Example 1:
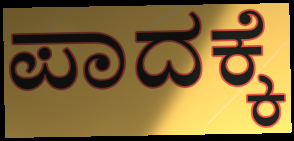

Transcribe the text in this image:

ಪಾದಕ್ಕೆ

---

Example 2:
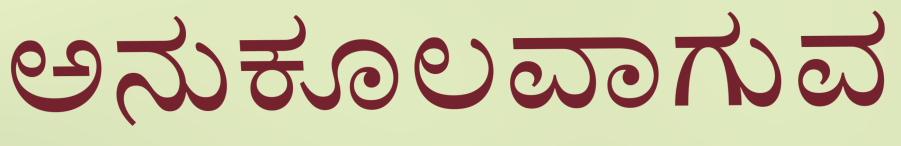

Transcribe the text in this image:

ಅನುಕೂಲವಾಗುವ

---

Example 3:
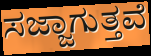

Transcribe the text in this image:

ಸಜ್ಜಾಗುತ್ತವೆ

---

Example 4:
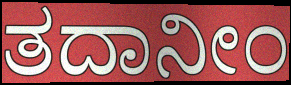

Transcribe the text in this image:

ತದಾನೀಂ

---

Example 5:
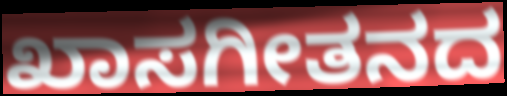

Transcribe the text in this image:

ಖಾಸಗೀತನದ